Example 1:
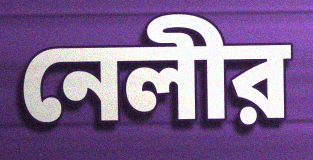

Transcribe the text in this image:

নেলীর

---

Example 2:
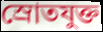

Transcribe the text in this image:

স্রোতযুক্ত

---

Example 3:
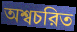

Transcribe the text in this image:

অশ্বচরিত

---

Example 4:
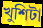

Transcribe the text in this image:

খুশিটা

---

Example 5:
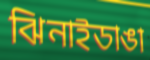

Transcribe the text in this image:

ঝিনাইডাঙা